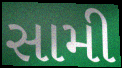
સામી